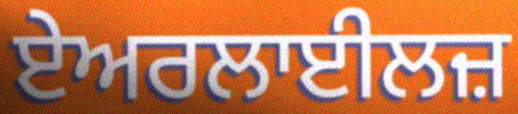
ਏਅਰਲਾਈਲਜ਼